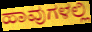
ಹಾವುಗಳಲ್ಲಿ